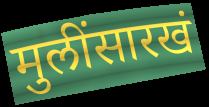
मुलींसारखं